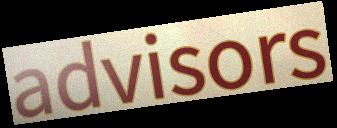
advisors